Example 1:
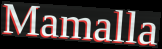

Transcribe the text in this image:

Mamalla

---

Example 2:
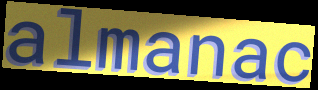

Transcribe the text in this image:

almanac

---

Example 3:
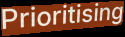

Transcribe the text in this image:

Prioritising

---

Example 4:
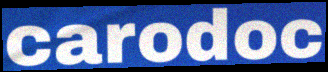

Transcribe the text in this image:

carodoc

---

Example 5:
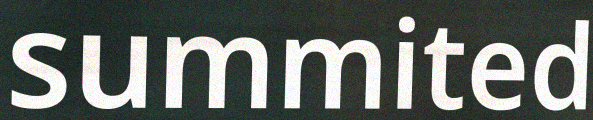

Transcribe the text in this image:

summited